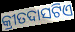
କ୍ରୀତଦାସଟିଏ